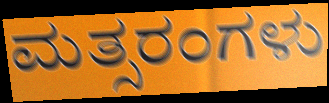
ಮತ್ಸರಂಗಳು